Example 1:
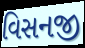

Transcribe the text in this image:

વિસનજી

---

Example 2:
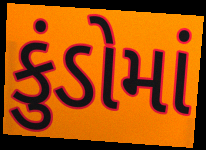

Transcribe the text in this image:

કુંડોમાં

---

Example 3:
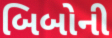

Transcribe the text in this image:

બિબોની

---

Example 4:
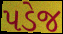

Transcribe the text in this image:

પડેજ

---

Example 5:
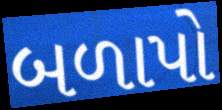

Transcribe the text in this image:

બળાપો